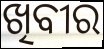
ଖିବୀର